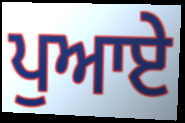
ਪੁਆਏ